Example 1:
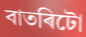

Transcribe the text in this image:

বাতৰিটো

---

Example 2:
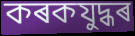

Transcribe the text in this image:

কৰকযুদ্ধৰ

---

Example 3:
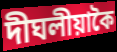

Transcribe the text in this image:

দীঘলীয়াকৈ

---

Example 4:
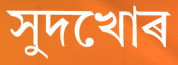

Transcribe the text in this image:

সুদখোৰ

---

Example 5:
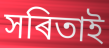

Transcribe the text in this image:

সৰিতাই